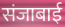
संजाबाई